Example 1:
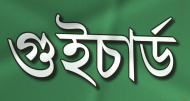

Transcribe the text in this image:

গুইচার্ড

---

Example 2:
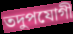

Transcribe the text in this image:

তদুপযোগী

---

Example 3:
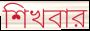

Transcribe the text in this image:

শিখবার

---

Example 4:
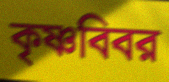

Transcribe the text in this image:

কৃষ্ণবিবর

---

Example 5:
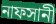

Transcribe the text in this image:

নাফসানী